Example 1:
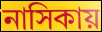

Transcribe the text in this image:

নাসিকায়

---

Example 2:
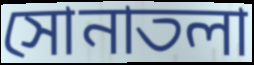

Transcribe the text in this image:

সোনাতলা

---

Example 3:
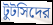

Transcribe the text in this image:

টুটসিদের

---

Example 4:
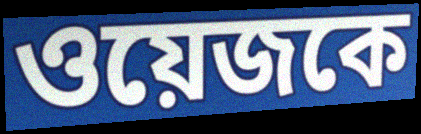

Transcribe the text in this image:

ওয়েজকে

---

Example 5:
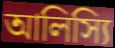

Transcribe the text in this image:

আলিস্যি